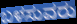
ಬಳಸುವರು